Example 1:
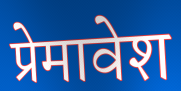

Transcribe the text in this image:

प्रेमावेश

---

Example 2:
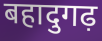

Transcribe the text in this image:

बहादुगढ़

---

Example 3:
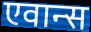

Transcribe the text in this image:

एवान्स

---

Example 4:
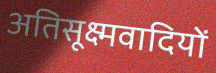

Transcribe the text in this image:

अतिसूक्ष्मवादियों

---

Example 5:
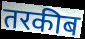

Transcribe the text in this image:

तरकीब